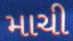
માચી